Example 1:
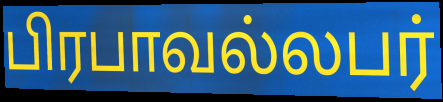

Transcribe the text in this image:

பிரபாவல்லபர்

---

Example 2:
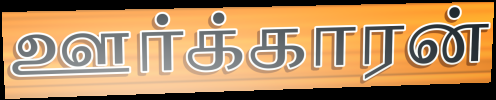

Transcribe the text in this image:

ஊர்க்காரன்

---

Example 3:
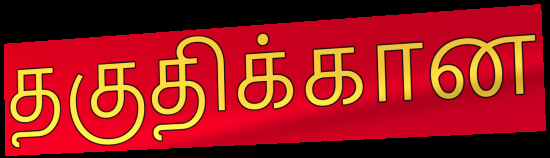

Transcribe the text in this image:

தகுதிக்கான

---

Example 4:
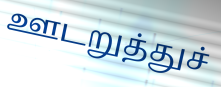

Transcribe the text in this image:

ஊடறுத்துச்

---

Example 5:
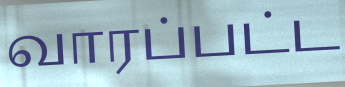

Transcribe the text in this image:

வாரப்பட்ட